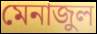
মেনাজুল